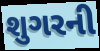
શુગરની